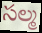
సల్మ